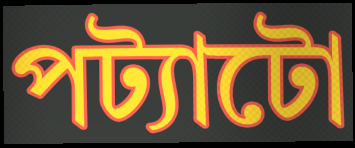
পট্যাটো